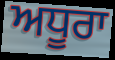
ਅਧੂਰਾ